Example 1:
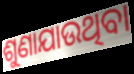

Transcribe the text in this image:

ଶୁଣାଯାଉଥିବା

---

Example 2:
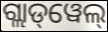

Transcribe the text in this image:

ଗ୍ଲାଡ୍‌ୱେଲ୍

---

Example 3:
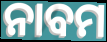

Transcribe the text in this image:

ନାବମ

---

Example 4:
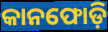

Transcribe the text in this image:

କାନଫୋଡ଼ି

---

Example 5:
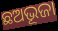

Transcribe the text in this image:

ଛଅଭୂଜା